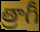
త్రాగీ